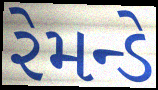
રેમન્ડે